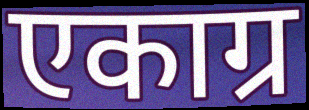
एकाग्र